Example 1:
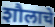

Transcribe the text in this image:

शौलाचे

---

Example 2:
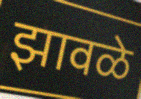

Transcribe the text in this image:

झावळे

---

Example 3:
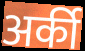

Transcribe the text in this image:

अर्की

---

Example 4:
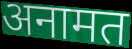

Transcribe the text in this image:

अनामत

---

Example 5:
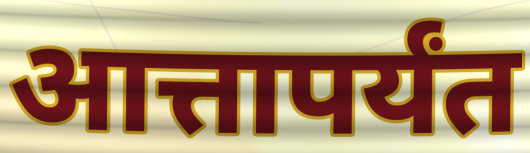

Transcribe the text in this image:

आत्तापर्यंत